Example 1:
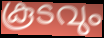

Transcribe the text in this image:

കൂടവും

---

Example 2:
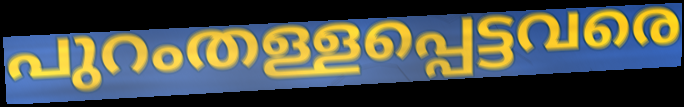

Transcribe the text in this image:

പുറംതള്ളപ്പെട്ടവരെ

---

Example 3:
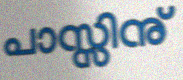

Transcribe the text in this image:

പാസ്സിനു്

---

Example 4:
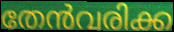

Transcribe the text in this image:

തേൻവരിക്ക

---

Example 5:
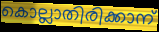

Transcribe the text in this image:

കൊല്ലാതിരിക്കാന്